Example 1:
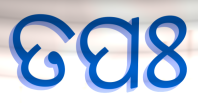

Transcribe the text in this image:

ତପଃ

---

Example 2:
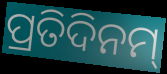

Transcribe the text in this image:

ପ୍ରତିଦିନମ୍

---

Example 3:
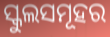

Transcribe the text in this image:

ସ୍କୁଲସମୂହର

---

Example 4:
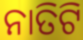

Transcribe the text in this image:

ନାତିଟି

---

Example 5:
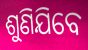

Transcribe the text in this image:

ଶୁଣିଯିବେ